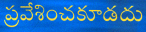
ప్రవేశించకూడదు